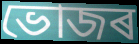
ভোজৰ